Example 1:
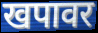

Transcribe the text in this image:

खपावर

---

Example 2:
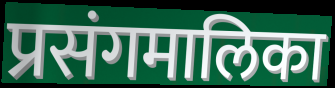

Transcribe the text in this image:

प्रसंगमालिका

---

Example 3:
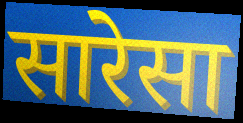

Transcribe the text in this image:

सारेसा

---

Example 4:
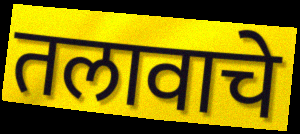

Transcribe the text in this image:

तलावाचे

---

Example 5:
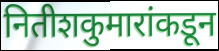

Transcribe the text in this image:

नितीशकुमारांकडून